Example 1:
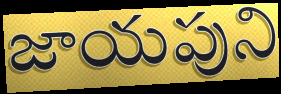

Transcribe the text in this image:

జాయపుని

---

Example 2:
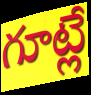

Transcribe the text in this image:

గూట్లే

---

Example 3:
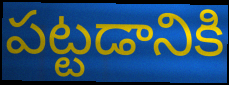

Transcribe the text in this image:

పట్టడానికి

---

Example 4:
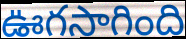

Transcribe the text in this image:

ఊగసాగింది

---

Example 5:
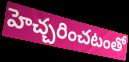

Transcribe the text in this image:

హెచ్చరించటంతో